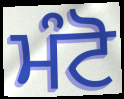
ਮੰਟੋ